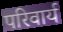
परिवार्य